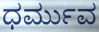
ಧರ್ಮುವ